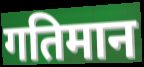
गतिमान